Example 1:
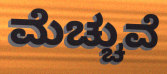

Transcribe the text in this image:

ಮೆಚ್ಚುವೆ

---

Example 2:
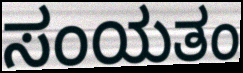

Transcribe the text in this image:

ಸಂಯತಂ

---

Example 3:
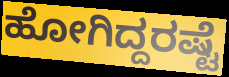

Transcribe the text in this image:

ಹೋಗಿದ್ದರಷ್ಟೆ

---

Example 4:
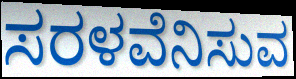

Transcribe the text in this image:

ಸರಳವೆನಿಸುವ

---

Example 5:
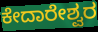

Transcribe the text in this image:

ಕೇದಾರೇಶ್ವರ